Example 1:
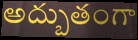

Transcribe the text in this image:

అద్బుతంగా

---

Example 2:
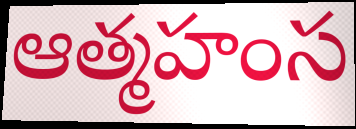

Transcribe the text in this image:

ఆత్మహంస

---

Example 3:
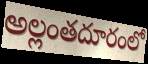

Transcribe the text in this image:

అల్లంతదూరంలో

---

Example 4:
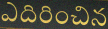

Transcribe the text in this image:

ఎదిరించిన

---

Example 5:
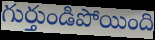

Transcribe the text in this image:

గుర్తుండిపోయింది